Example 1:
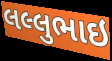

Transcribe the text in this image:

લલ્લુભાઇ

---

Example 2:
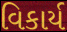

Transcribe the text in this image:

વિકાર્ય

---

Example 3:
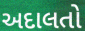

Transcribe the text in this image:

અદાલતો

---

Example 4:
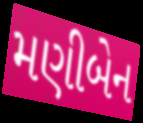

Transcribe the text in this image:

મણીબેન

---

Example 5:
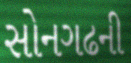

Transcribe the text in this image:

સોનગઢની